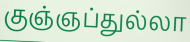
குஞ்ஞப்துல்லா